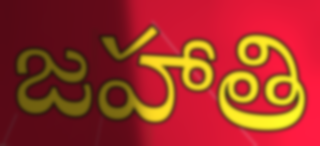
జహాతి